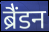
ब्रैंडन